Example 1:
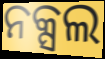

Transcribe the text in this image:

ନକ୍ସଲ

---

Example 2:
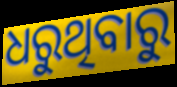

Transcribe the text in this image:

ଧରୁଥିବାରୁ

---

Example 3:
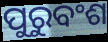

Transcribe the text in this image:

ପୁରୁବଂଶ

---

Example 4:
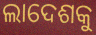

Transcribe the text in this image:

ଲାଦେଶକୁ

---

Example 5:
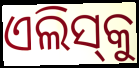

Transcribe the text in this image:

ଏଲିସ୍‌କୁ